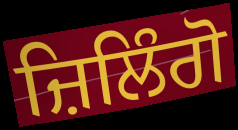
ਜ਼ਿਲਿੰਗੋ